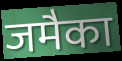
जमैका